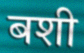
बशी